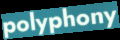
polyphony